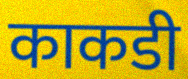
काकडी